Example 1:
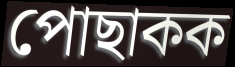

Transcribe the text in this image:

পোছাকক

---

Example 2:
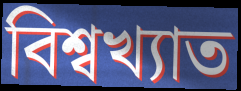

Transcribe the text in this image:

বিশ্বখ্যাত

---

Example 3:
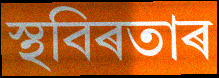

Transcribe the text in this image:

স্থবিৰতাৰ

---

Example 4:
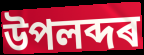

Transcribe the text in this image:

উপলব্দৰ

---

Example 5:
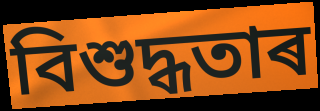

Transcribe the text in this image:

বিশুদ্ধতাৰ